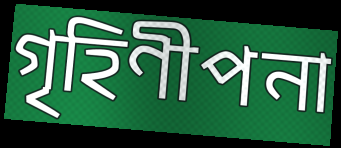
গৃহিণীপনা